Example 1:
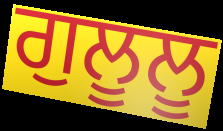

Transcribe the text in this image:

ਗੁਲੂਲੂ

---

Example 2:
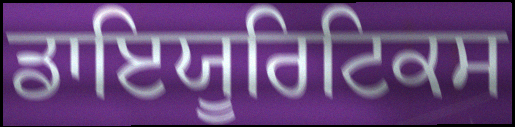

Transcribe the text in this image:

ਡਾਇਯੂਰਿਟਿਕਸ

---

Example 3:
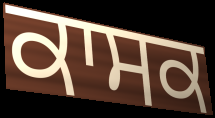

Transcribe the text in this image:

ਕਾਸਕ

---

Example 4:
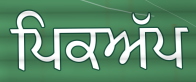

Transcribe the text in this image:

ਪਿਕਅੱਪ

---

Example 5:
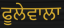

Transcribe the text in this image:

ਫੂਲੇਵਾਲਾ